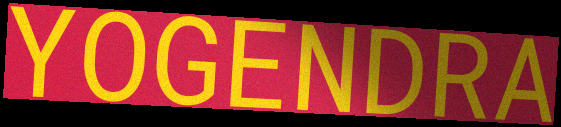
YOGENDRA